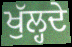
ਖੁੱਲ੍ਹਦੇ